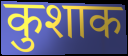
कुशाक